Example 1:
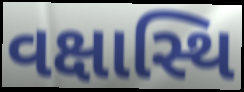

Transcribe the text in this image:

વક્ષાસ્થિ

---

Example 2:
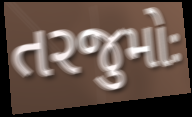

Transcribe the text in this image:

તરજુમોઃ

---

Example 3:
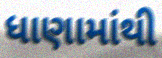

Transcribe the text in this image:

ધાણામાંથી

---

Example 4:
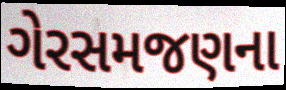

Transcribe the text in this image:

ગેરસમજણના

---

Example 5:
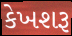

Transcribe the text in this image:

કેખશરૂ